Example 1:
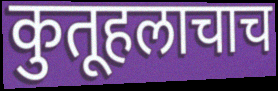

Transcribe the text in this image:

कुतूहलाचाच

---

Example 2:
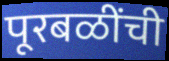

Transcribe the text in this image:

पूरबळींची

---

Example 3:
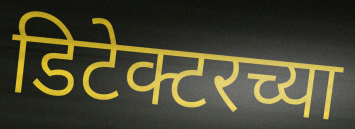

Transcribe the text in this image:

डिटेक्टरच्या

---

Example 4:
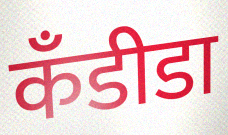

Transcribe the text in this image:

कॅंडीडा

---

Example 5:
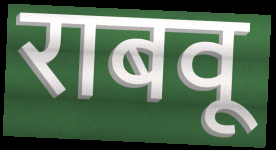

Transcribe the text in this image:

राबवू